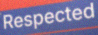
Respected